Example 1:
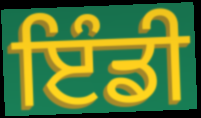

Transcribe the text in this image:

ਇੰਡੀ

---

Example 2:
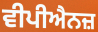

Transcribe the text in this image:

ਵੀਪੀਐਨਜ਼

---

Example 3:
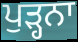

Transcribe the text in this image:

ਪੁੜ੍ਹਨਾ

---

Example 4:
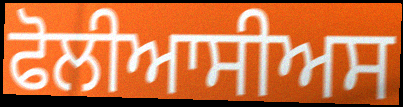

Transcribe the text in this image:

ਫੋਲੀਆਸੀਅਸ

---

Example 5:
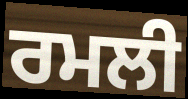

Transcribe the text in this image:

ਰਮਲੀ